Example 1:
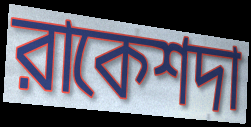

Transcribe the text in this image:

রাকেশদা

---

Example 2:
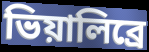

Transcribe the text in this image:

ভিয়ালিব্রে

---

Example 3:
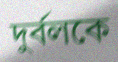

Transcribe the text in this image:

দুর্বলকে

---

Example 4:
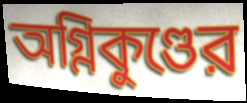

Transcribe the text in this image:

অগ্নিকুণ্ডের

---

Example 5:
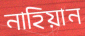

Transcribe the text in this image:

নাহিয়ান